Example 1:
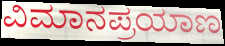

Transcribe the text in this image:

ವಿಮಾನಪ್ರಯಾಣ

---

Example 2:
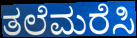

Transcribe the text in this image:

ತಲೆಮರೆಸಿ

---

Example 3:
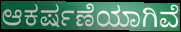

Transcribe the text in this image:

ಆಕರ್ಷಣೆಯಾಗಿವೆ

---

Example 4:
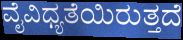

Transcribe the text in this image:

ವೈವಿಧ್ಯತೆಯಿರುತ್ತದೆ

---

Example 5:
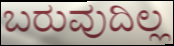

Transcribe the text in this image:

ಬರುವುದಿಲ್ಲ